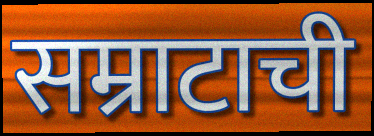
सम्राटाची